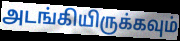
அடங்கியிருக்கவும்